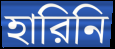
হারিনি